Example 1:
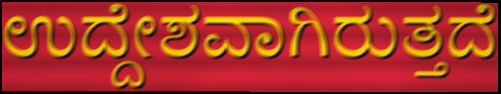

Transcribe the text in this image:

ಉದ್ದೇಶವಾಗಿರುತ್ತದೆ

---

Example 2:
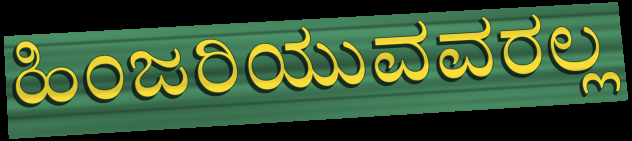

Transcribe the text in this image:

ಹಿಂಜರಿಯುವವರಲ್ಲ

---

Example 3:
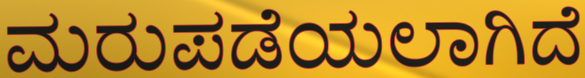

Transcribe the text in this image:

ಮರುಪಡೆಯಲಾಗಿದೆ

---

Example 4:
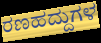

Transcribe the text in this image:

ರಣಹದ್ದುಗಳ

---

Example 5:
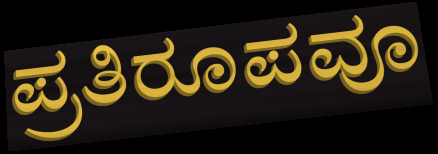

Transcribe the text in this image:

ಪ್ರತಿರೂಪವೂ